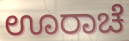
ಊರಾಚೆ